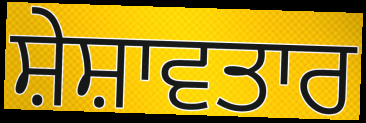
ਸ਼ੇਸ਼ਾਵਤਾਰ